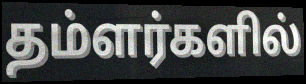
தம்ளர்களில்